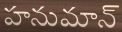
హనుమాన్